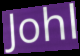
Johl